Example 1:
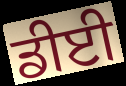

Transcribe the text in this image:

ਡੀਈ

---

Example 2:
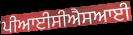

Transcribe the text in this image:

ਪੀਆਈਸੀਐਸਆਈ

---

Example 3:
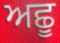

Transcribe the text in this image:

ਅਛੂ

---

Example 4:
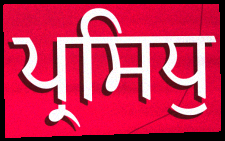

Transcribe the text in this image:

ਪ੍ਰਸਿਧੁ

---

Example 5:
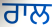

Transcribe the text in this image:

ਰਾਲ